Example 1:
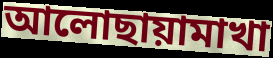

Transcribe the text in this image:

আলোছায়ামাখা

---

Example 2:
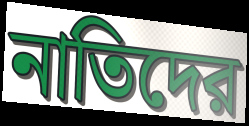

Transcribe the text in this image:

নাতিদের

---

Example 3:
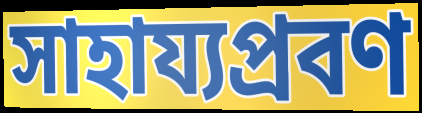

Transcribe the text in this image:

সাহায্যপ্রবণ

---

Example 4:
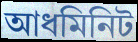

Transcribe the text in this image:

আধমিনিট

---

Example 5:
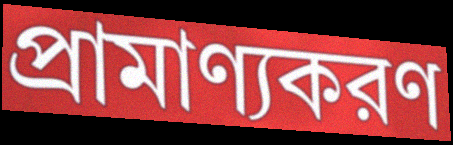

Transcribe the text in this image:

প্রামাণ্যকরণ